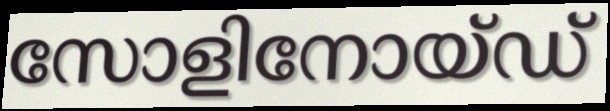
സോളിനോയ്ഡ്